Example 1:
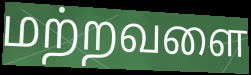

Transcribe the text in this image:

மற்றவளை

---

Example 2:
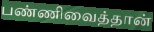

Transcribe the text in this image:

பண்ணிவைத்தான்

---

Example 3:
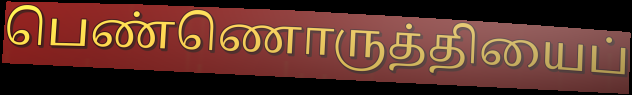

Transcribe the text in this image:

பெண்ணொருத்தியைப்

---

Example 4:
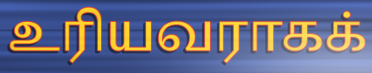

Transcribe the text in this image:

உரியவராகக்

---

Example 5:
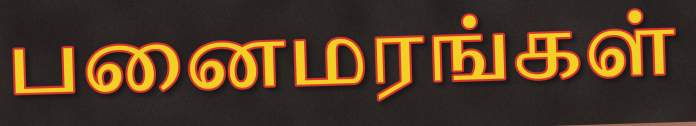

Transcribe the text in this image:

பனைமரங்கள்